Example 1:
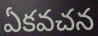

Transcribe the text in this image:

ఏకవచన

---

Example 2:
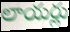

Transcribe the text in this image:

లాయర్లు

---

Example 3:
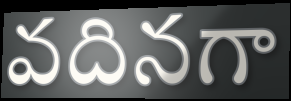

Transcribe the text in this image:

వదినగా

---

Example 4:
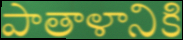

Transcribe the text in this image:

పాతాళానికి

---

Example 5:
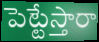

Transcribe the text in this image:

పెట్టేస్తారా